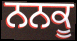
ਨਨਕੂ